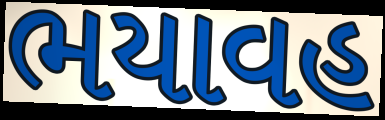
ભયાવહ